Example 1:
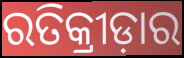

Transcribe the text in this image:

ରତିକ୍ରୀଡ଼ାର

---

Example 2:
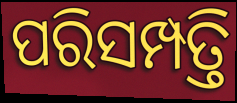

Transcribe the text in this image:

ପରିସମ୍ପତ୍ତି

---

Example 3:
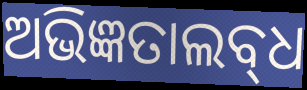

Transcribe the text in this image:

ଅଭିଜ୍ଞତାଲବ୍‌ଧ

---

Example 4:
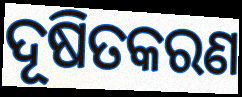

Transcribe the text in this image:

ଦୂଷିତକରଣ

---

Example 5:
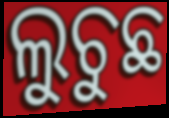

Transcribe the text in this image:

ଲୁଚୁଛ